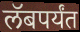
लॅबपर्यंत